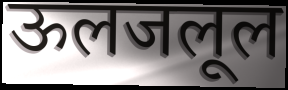
ऊलजलूल